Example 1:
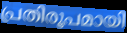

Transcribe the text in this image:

പ്രതിരൂപമായി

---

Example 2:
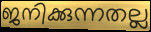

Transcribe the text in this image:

ജനിക്കുന്നതല്ല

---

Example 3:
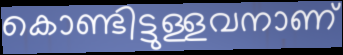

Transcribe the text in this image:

കൊണ്ടിട്ടുള്ളവനാണ്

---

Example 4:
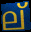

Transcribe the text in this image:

ല്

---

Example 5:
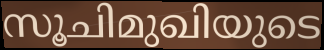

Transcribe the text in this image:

സൂചിമുഖിയുടെ